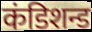
कंडिशन्ड